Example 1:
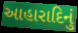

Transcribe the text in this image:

આહારાદિનું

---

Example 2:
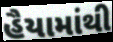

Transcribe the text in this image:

હૈયામાંથી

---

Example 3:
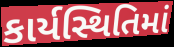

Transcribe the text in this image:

કાર્યસ્થિતિમાં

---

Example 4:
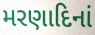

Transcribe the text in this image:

મરણાદિનાં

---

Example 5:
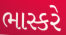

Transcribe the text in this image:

ભાસ્કરે